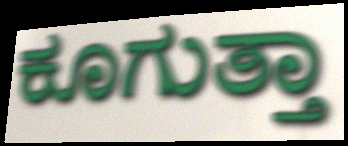
ಕೂಗುತ್ತಾ